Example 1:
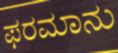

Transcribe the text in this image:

ಫರಮಾನು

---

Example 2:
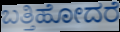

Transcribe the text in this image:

ಬತ್ತಿಹೋದರೆ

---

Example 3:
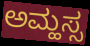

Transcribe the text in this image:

ಅಮ್ಹಸ್ಸ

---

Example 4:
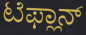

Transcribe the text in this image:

ಟೆಫ್ಲಾನ್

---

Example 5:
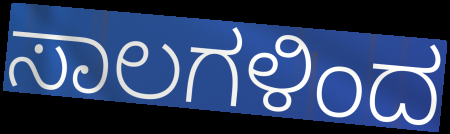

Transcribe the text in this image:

ಸಾಲಗಳಿಂದ